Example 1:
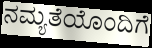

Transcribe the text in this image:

ನಮ್ಯತೆಯೊಂದಿಗೆ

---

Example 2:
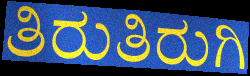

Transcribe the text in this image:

ತಿರುತಿರುಗಿ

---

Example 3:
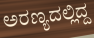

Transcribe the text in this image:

ಅರಣ್ಯದಲ್ಲಿದ್ದ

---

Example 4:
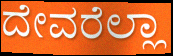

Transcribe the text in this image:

ದೇವರೆಲ್ಲಾ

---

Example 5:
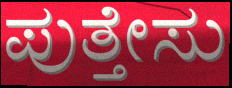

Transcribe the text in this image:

ಪುತ್ತೇಸು